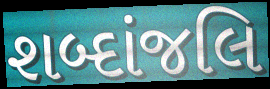
શબ્દાંજલિ